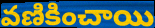
వణికించాయి